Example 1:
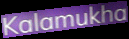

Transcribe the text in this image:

Kalamukha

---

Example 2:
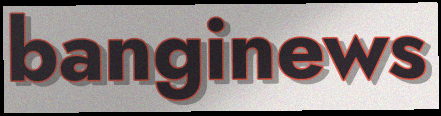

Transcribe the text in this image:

banginews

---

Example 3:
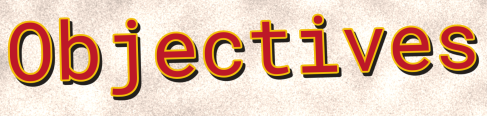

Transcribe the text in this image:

Objectives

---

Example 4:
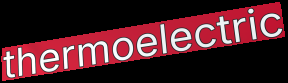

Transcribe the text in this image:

thermoelectric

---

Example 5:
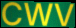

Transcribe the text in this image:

CWV